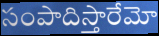
సంపాదిస్తారేమో